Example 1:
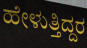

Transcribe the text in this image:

ಹೇಳುತ್ತಿದ್ದರ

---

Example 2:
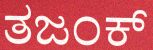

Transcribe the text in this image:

ತಜಂಕ್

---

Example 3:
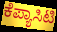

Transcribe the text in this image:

ಕೆಪ್ಯಾಸಿಟಿ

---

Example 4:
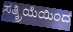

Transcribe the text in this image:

ಸತ್ಕ್ರಿಯೆಯಿಂದ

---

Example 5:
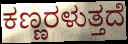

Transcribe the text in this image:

ಕಣ್ಣರಳುತ್ತದೆ